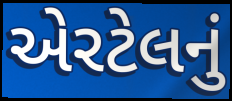
એરટેલનું